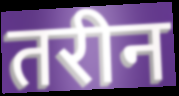
तरीन